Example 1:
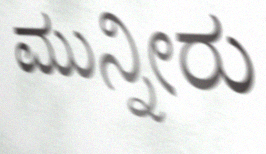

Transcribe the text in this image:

ಮುನ್ನೀರು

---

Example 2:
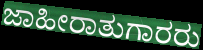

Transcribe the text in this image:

ಜಾಹೀರಾತುಗಾರರು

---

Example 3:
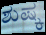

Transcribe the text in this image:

ಶುಷ್ಕ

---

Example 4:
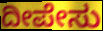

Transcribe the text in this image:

ದೀಪೇಸು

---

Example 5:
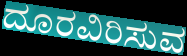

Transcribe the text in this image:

ದೂರವಿರಿಸುವ